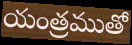
యంత్రముతో